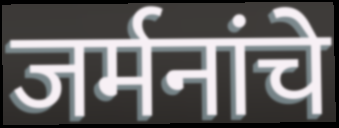
जर्मनांचे